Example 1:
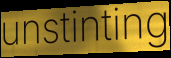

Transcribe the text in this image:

unstinting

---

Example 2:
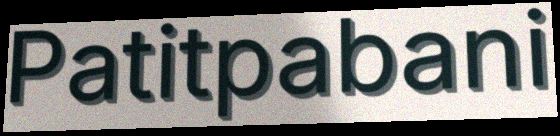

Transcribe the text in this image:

Patitpabani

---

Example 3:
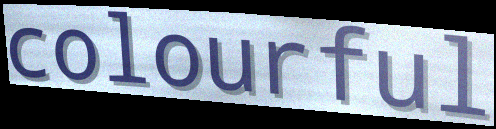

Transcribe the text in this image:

colourful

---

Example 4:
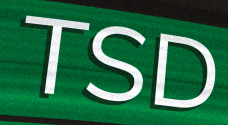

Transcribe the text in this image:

TSD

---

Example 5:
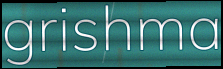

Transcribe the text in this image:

grishma